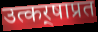
उत्कर्षाप्रत